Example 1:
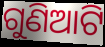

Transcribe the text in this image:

ଗୁଣିଆଟି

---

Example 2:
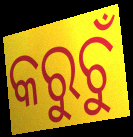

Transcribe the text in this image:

କରୁଚୁଁ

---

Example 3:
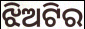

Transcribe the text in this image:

ଝିଅଟିର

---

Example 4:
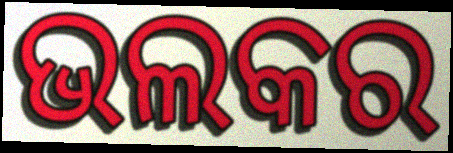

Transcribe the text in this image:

ଭଲକର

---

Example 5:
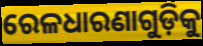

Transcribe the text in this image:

ରେଳଧାରଣାଗୁଡ଼ିକୁ